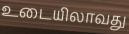
உடையிலாவது